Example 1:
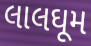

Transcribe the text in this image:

લાલઘૂમ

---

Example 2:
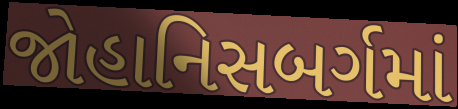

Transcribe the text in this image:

જોહાનિસબર્ગમાં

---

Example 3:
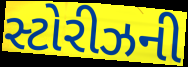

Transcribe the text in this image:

સ્ટોરીઝની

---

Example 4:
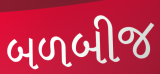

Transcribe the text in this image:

બળબીજ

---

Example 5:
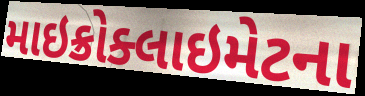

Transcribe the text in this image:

માઇક્રોક્લાઇમેટના